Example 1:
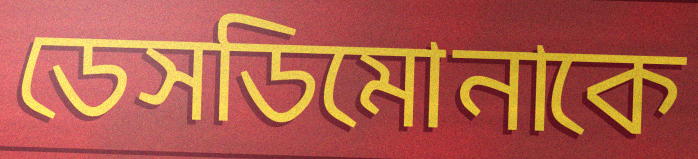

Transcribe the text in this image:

ডেসডিমোনাকে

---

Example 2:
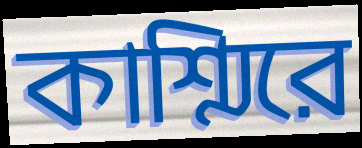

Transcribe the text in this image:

কাশ্মিরে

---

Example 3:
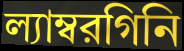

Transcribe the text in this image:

ল্যাম্বরগিনি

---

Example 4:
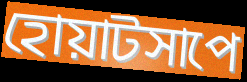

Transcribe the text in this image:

হোয়াটসাপে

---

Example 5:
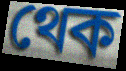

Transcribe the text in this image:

থেক